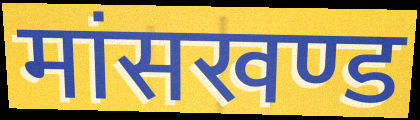
मांसखण्ड